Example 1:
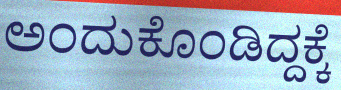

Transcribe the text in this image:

ಅಂದುಕೊಂಡಿದ್ದಕ್ಕೆ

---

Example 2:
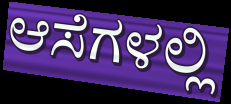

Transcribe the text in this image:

ಆಸೆಗಳಲ್ಲಿ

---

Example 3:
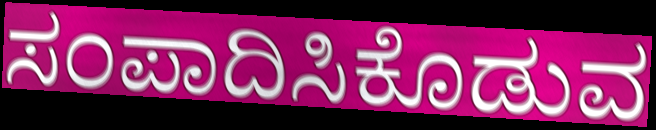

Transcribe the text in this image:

ಸಂಪಾದಿಸಿಕೊಡುವ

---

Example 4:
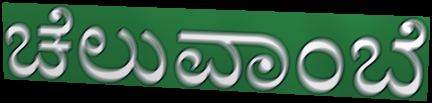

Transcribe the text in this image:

ಚೆಲುವಾಂಬೆ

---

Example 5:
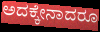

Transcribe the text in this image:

ಅದಕ್ಕೇನಾದರೂ